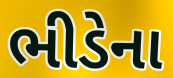
ભીડેના